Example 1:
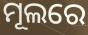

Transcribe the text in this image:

ମୂଲରେ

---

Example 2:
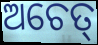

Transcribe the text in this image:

ଅଚେତ୍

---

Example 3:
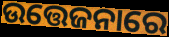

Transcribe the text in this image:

ଉତ୍ତେଜନାରେ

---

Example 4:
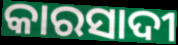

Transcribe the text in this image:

କାରସାଦୀ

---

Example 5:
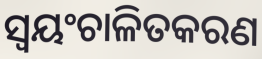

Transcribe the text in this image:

ସ୍ୱୟଂଚାଳିତକରଣ